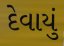
દેવાયું